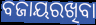
ବଜାୟରଖିବା